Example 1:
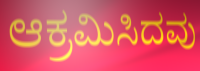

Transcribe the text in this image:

ಆಕ್ರಮಿಸಿದವು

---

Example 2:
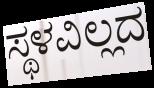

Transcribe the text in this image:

ಸ್ಥಳವಿಲ್ಲದ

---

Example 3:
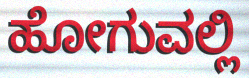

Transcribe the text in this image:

ಹೋಗುವಲ್ಲಿ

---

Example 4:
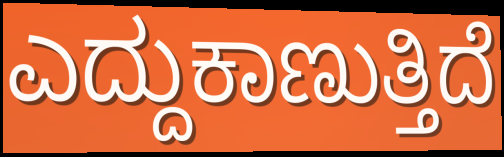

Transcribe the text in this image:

ಎದ್ದುಕಾಣುತ್ತಿದೆ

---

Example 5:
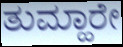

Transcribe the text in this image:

ತುಮ್ಹಾರೇ